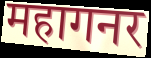
महागनर